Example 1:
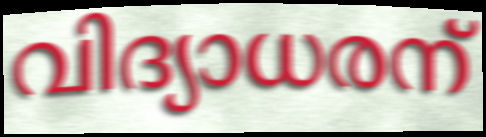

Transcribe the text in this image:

വിദ്യാധരന്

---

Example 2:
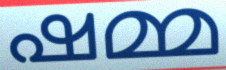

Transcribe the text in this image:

ഷമ്മ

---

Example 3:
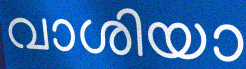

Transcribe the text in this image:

വാശിയാ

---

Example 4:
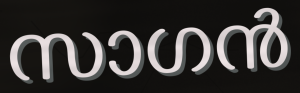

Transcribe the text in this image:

സാഗൻ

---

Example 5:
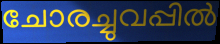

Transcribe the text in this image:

ചോരച്ചുവപ്പിൽ